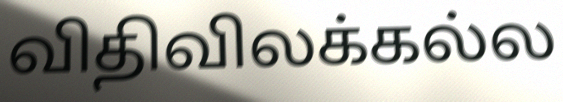
விதிவிலக்கல்ல